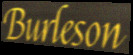
Burleson